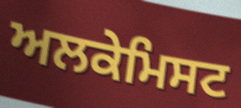
ਅਲਕੇਮਿਸਟ